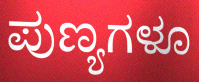
ಪುಣ್ಯಗಳೂ